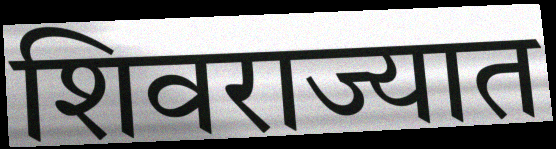
शिवराज्यात